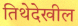
तिथेदेखील